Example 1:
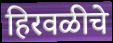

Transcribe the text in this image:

हिरवळीचे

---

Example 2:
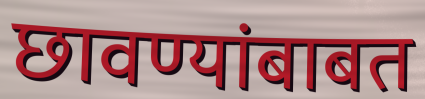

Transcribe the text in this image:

छावण्यांबाबत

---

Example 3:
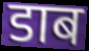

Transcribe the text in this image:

डाब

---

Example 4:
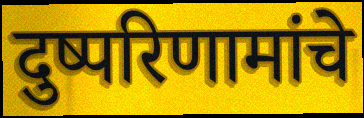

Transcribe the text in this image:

दुष्परिणामांचे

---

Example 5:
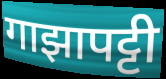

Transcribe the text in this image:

गाझापट्टी